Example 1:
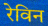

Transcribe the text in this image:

रेविन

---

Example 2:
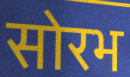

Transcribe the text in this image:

सोरभ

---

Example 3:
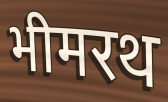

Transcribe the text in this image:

भीमरथ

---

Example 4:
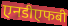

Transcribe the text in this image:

एनडीएफबी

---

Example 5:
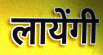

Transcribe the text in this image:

लायेंगी